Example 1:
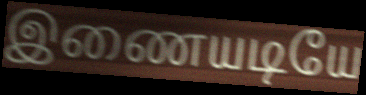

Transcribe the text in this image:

இணையடியே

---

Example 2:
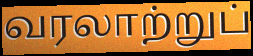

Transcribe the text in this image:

வரலாற்றுப்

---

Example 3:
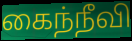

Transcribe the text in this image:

கைந்நீவி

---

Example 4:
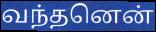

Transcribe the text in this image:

வந்தனென்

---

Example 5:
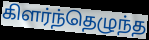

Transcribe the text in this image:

கிளர்ந்தெழுந்த